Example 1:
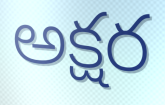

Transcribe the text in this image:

అక్షర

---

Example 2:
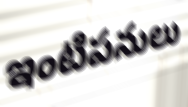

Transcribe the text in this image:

ఇంటిపనులు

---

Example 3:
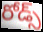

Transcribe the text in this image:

రోడ్స్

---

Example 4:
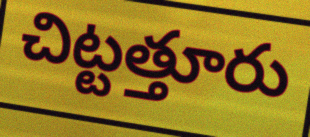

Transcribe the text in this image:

చిట్టత్తూరు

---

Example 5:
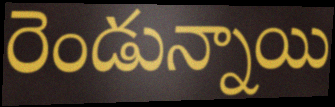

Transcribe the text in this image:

రెండున్నాయి